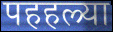
पहहल्या